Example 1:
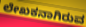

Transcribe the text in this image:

ಲೇಖಕನಾಗಿರುವ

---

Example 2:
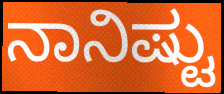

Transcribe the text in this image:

ನಾನಿಷ್ಟು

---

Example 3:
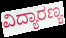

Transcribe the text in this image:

ವಿದ್ಯಾರಣ್ಯ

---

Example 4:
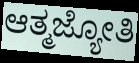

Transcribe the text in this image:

ಆತ್ಮಜ್ಯೋತಿ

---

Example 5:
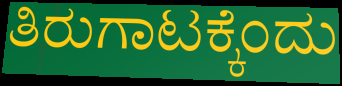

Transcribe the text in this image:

ತಿರುಗಾಟಕ್ಕೆಂದು